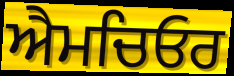
ਐਮਚਿਓਰ